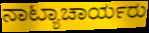
ನಾಟ್ಯಾಚಾರ್ಯರು